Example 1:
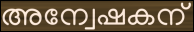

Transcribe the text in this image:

അന്വേഷകന്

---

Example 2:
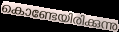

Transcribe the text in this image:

കൊണ്ടേയിരിക്കുന്നു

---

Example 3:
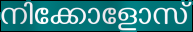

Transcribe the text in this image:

നിക്കോളോസ്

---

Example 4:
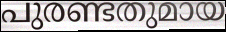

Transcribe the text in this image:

പുരണ്ടതുമായ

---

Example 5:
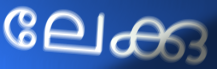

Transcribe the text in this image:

ലേക്കു